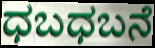
ಧಬಧಬನೆ